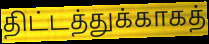
திட்டத்துக்காகத்